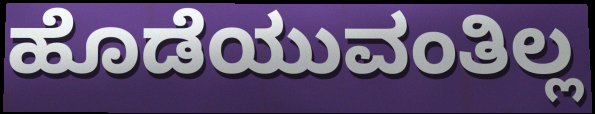
ಹೊಡೆಯುವಂತಿಲ್ಲ